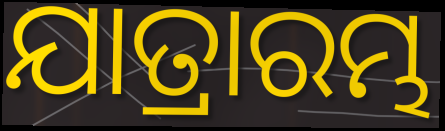
ଯାତ୍ରାରମ୍ଭ